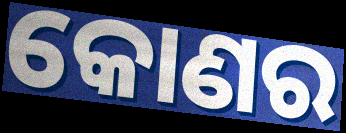
କୋଣର